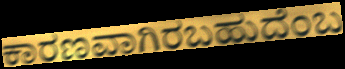
ಕಾರಣವಾಗಿರಬಹುದೆಂಬ